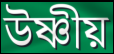
উষ্ণীয়